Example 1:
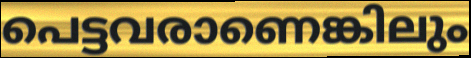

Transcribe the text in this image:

പെട്ടവരാണെങ്കിലും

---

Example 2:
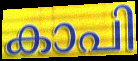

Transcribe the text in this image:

കാപി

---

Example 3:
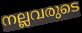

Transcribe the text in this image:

നല്ലവരുടെ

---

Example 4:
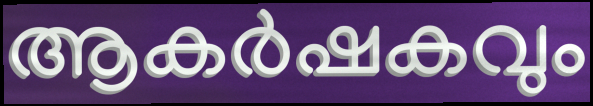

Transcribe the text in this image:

ആകർഷകവും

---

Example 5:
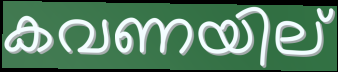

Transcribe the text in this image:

കവണയില്